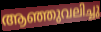
ആഞ്ഞുവലിച്ചു